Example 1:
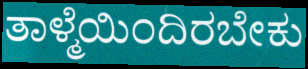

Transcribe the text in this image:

ತಾಳ್ಮೆಯಿಂದಿರಬೇಕು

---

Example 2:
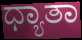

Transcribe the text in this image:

ಧ್ಯಾತಾ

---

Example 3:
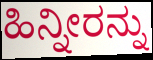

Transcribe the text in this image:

ಹಿನ್ನೀರನ್ನು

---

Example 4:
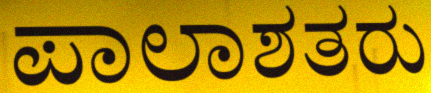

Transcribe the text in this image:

ಪಾಲಾಶತರು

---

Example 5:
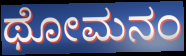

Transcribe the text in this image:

ಥೋಮನಂ